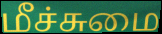
மீச்சுமை